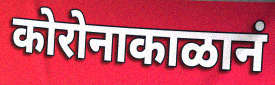
कोरोनाकाळानं